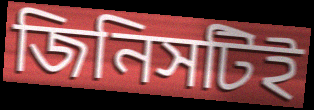
জিনিসটিই